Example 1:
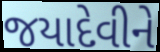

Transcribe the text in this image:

જયાદેવીને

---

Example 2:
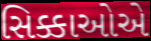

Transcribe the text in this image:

સિક્કાઓએ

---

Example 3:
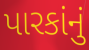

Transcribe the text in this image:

પારકાંનું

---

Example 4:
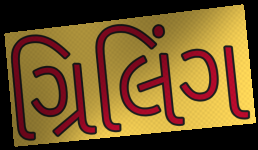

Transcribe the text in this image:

ગ્રિલિંગ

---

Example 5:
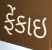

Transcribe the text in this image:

ફેંકાઇ